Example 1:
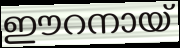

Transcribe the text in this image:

ഈറനായ്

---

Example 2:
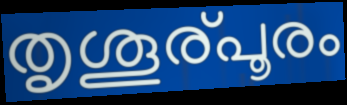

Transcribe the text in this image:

തൃശൂര്പൂരം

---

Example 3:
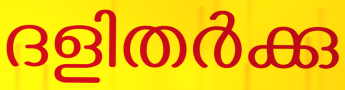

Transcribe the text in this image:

ദളിതർക്കു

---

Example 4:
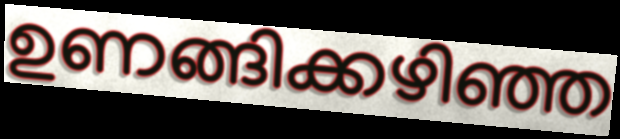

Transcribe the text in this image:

ഉണങ്ങിക്കഴിഞ്ഞ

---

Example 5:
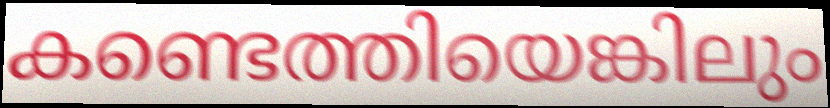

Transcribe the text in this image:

കണ്ടെത്തിയെങ്കിലും